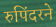
रुपिंदरने